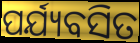
ପର୍ଯ୍ୟବସିତ